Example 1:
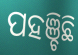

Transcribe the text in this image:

ପହଞ୍ଚିଛି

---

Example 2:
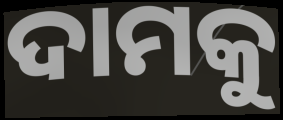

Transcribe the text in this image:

ଦାମକୁ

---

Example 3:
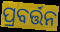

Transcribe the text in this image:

ପ୍ରବର୍ତ୍ତନ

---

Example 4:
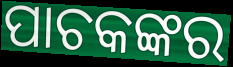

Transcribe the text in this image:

ପାଚକଙ୍କର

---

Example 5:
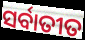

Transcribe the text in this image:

ସର୍ବାତୀତ